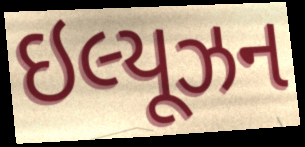
ઇલ્યૂઝન